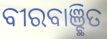
ବୀରବାଞ୍ଛିତ